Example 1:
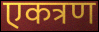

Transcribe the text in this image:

एकत्रण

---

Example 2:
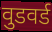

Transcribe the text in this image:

वुडवर्ड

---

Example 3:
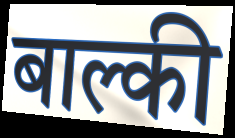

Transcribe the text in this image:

बाल्‍की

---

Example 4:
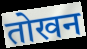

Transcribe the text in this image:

तोखन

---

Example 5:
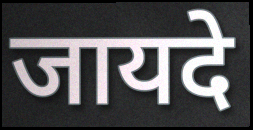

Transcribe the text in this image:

जायदे